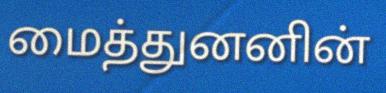
மைத்துனனின்